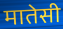
मातेसी